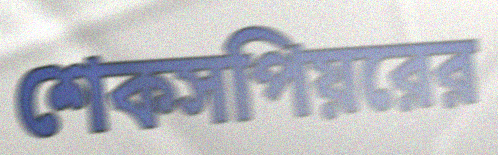
শেকসপিয়রের